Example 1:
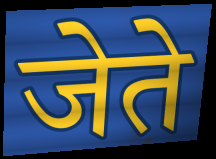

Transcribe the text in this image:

जेते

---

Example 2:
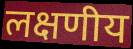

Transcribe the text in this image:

लक्षणीय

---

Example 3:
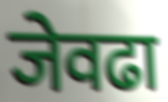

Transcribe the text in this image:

जेवढा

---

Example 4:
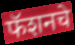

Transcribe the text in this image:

फॅशनचे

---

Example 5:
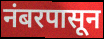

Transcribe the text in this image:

नंबरपासून